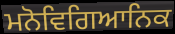
ਮਨੋਵਿਗਿਆਨਿਕ